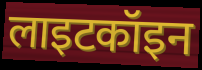
लाइटकॉइन